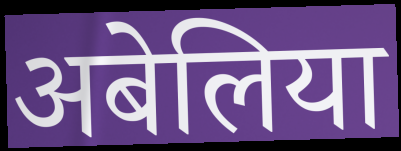
अबेलिया